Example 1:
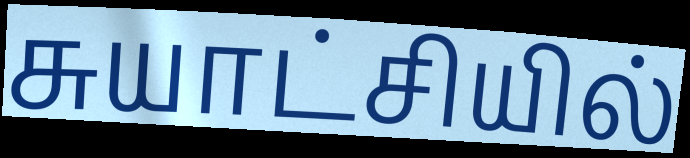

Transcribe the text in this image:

சுயாட்சியில்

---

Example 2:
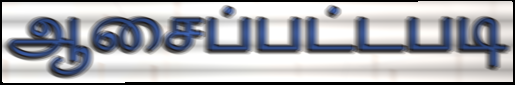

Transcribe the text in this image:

ஆசைப்பட்டபடி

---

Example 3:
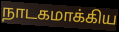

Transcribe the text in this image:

நாடகமாக்கிய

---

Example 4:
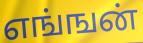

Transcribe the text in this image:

எங்ஙன்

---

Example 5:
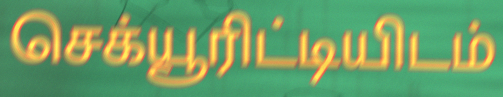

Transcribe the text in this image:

செக்யூரிட்டியிடம்